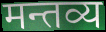
मन्तव्य